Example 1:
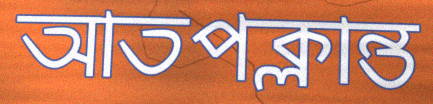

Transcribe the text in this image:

আতপক্লান্ত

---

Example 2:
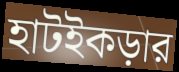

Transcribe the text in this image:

হাটইকড়ার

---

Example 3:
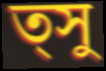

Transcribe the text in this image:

ত্সু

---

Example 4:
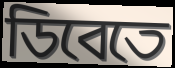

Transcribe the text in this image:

ডিবেতে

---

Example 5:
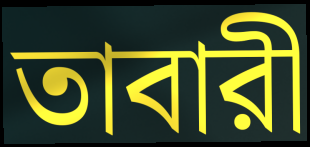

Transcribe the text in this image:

তাবারী